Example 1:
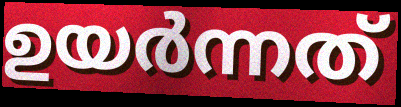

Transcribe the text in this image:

ഉയർന്നത്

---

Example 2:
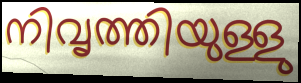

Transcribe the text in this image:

നിവൃത്തിയുള്ളു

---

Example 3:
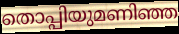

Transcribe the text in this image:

തൊപ്പിയുമണിഞ്ഞ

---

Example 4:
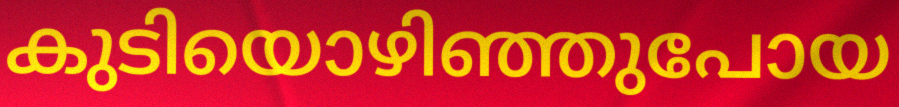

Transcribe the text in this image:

കുടിയൊഴിഞ്ഞുപോയ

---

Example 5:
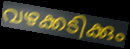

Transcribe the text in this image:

വഴക്കടിക്കും